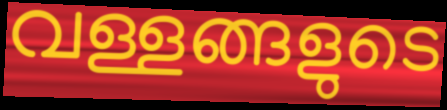
വള്ളങ്ങളുടെ